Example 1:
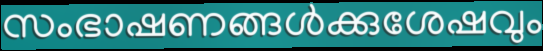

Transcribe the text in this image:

സംഭാഷണങ്ങൾക്കുശേഷവും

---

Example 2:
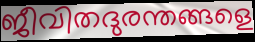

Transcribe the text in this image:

ജീവിതദുരന്തങ്ങളെ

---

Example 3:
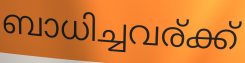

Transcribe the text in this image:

ബാധിച്ചവര്ക്ക്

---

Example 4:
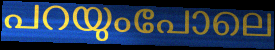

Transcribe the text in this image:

പറയുംപോലെ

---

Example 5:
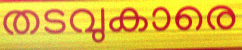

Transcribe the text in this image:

തടവുകാരെ